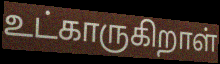
உட்காருகிறாள்